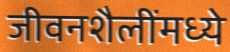
जीवनशैलींमध्ये